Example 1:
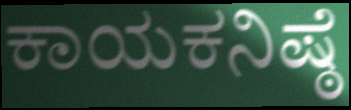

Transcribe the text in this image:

ಕಾಯಕನಿಷ್ಠೆ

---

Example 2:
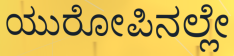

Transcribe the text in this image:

ಯುರೋಪಿನಲ್ಲೇ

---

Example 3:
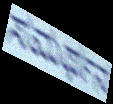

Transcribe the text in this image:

ಸಮರ್ಥನ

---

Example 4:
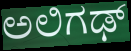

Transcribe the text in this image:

ಅಲಿಗಢ್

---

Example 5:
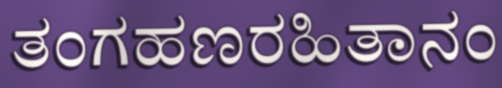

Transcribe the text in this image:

ತಂಗಹಣರಹಿತಾನಂ